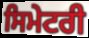
ਸਿਮੇਟਰੀ